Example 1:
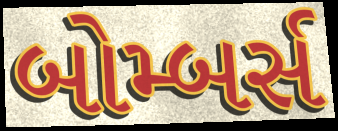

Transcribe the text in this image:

બોમ્બર્સ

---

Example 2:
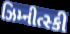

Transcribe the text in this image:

ઝિમ્નીત્સ્કી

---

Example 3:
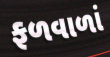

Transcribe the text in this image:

ફળવાળાં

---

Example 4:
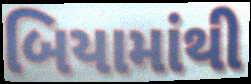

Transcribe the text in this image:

બિયામાંથી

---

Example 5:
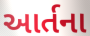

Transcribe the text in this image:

આર્તના